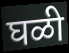
घळी